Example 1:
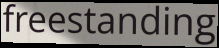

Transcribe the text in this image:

freestanding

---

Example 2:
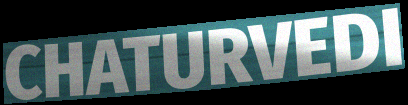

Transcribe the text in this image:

CHATURVEDI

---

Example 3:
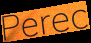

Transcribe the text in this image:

Perec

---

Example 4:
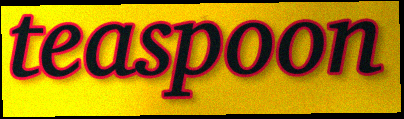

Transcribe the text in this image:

teaspoon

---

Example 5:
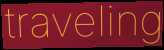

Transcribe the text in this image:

traveling